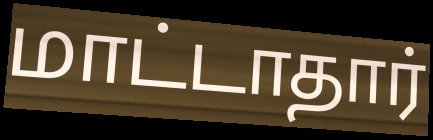
மாட்டாதார்